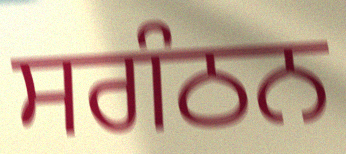
ਸਗੰਠਨ